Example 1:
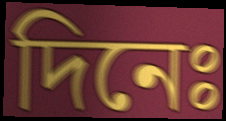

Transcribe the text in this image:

দিনেঃ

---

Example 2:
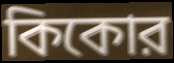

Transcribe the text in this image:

কিকোর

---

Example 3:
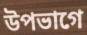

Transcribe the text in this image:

উপভাগে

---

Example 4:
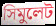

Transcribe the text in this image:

সিমুলেট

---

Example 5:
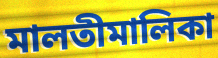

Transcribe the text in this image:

মালতীমালিকা